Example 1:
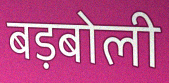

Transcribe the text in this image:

बड़बोली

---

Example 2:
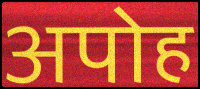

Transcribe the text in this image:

अपोह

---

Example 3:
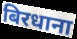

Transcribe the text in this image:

बिरधाना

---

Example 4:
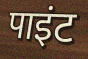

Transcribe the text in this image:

पाइंट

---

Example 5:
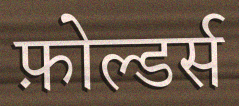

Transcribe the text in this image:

फ़ोल्डर्स